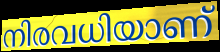
നിരവധിയാണ്